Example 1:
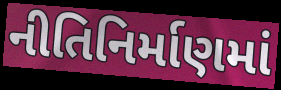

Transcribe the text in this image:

નીતિનિર્માણમાં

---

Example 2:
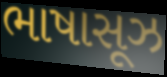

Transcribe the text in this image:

ભાષાસૂઝ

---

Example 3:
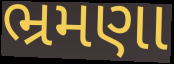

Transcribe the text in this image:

ભ્રમણા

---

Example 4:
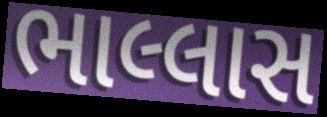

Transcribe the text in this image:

ભાલ્લાસ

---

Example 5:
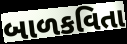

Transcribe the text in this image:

બાળકવિતા